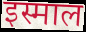
इस्माल